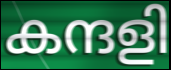
കന്ദളി